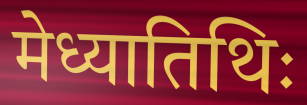
मेध्यातिथिः